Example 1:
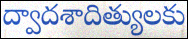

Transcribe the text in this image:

ద్వాదశాదిత్యులకు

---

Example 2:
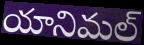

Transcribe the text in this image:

యానిమల్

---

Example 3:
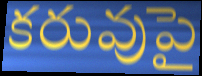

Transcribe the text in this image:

కరువుపై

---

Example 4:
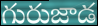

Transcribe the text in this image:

గురుజాడ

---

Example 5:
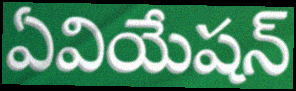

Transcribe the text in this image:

ఏవియేషన్